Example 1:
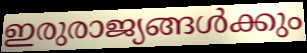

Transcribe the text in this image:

ഇരുരാജ്യങ്ങൾക്കും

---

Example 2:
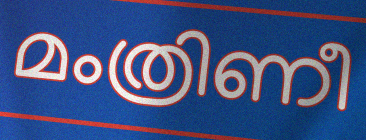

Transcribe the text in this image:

മംത്രിണീ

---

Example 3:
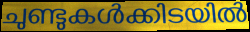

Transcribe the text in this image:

ചുണ്ടുകൾക്കിടയിൽ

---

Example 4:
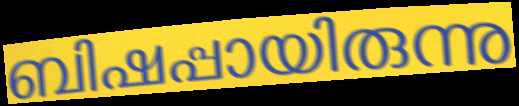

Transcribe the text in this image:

ബിഷപ്പായിരുന്നു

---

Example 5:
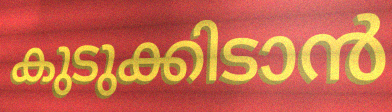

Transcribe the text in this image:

കുടുക്കിടാൻ